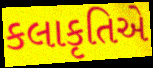
કલાકૃતિએ